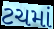
ટચમાં